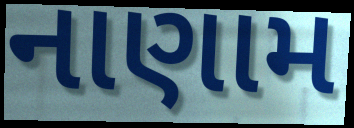
નાણામ